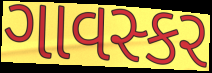
ગાવસ્કર